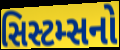
સિસ્ટમ્સનો